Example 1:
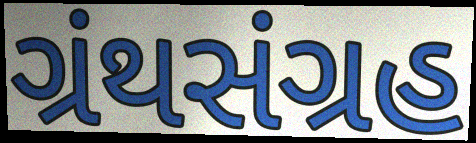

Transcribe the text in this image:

ગ્રંથસંગ્રહ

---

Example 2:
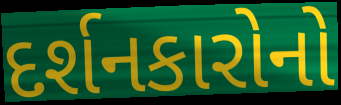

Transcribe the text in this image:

દર્શનકારોનો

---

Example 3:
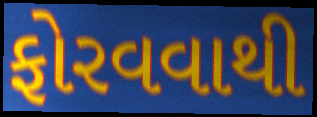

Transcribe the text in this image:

ફોરવવાથી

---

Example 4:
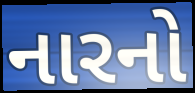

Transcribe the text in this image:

નારનો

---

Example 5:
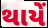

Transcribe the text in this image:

થાયેં